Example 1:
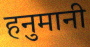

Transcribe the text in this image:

हनुमानी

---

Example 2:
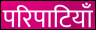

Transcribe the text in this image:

परिपाटियाँ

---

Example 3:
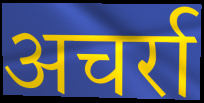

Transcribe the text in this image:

अचर्रा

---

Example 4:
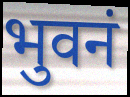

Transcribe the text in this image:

भुवनं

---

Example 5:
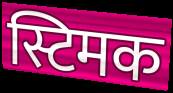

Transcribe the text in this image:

स्टिमक